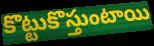
కొట్టుకొస్తుంటాయి